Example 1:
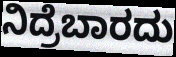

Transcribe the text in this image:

ನಿದ್ರೆಬಾರದು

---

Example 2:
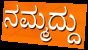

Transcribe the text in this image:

ನಮ್ಮದ್ದು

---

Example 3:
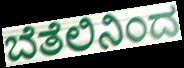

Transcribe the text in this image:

ಬೆತೆಲಿನಿಂದ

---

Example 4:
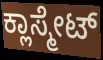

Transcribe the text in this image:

ಕ್ಲಾಸ್ಮೇಟ್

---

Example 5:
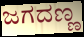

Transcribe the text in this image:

ಜಗದಣ್ಣ